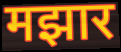
मझार